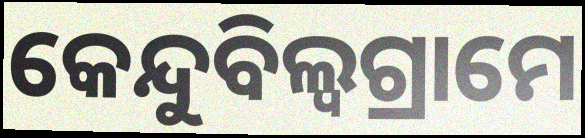
କେନ୍ଦୁବିଲ୍ଵଗ୍ରାମେ